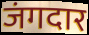
जंगदार